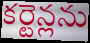
కర్టెన్లను